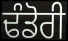
ਢੰਡੋਰੀ